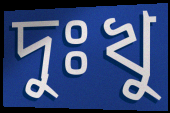
দুঃখু